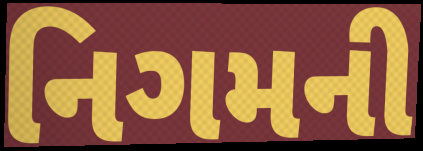
નિગમની